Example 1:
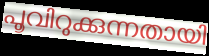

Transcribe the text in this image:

പൂവിറുക്കുന്നതായി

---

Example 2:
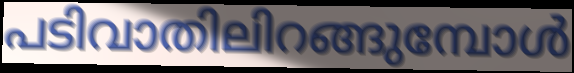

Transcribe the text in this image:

പടിവാതിലിറങ്ങുമ്പോൾ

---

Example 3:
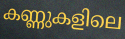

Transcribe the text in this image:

കണ്ണുകളിലെ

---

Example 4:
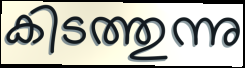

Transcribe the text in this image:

കിടത്തുന്നു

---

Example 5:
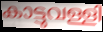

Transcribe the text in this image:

കാട്ടുവള്ളി